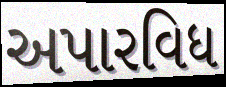
અપારવિધ